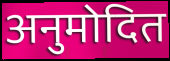
अनुमोदित